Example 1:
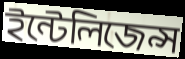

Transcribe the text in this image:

ইন্টেলিজেন্স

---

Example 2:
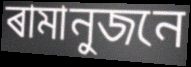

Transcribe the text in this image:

ৰামানুজনে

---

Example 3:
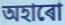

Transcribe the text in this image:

অহাৰো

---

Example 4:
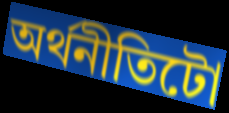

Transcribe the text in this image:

অৰ্থনীতিটো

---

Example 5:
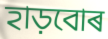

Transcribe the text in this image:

হাড়বোৰ